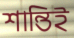
শান্তিই